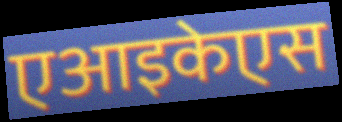
एआइकेएस